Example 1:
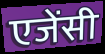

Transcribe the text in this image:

एजेंसी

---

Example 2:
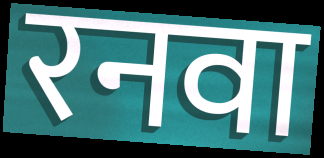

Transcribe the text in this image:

रनवा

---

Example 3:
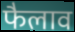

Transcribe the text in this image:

फैलाव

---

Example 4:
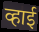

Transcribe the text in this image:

व्हाई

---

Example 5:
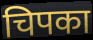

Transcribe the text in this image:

चिपका